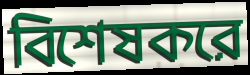
বিশেষকরে